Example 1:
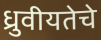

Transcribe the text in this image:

ध्रुवीयतेचे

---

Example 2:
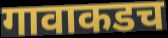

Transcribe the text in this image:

गावाकडच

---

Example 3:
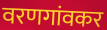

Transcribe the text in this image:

वरणगांवकर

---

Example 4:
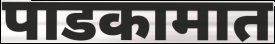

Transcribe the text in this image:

पाडकामात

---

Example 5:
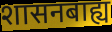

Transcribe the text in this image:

शासनबाह्य